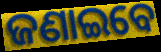
ଜଣାଇବେ